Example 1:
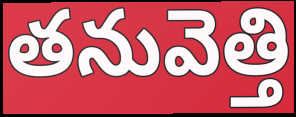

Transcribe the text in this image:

తనువెత్తి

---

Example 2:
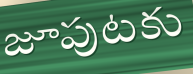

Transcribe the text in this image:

జూపుటకు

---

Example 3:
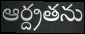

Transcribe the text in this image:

ఆర్ద్రతను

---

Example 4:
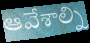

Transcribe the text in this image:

ఆవేశాల్ని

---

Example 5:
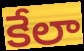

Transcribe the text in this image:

కేలా